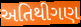
અતિથીગણ